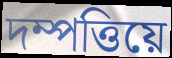
দম্পত্তিয়ে